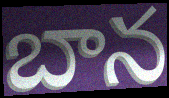
బాన